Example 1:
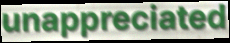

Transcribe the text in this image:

unappreciated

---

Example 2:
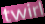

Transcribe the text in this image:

twirl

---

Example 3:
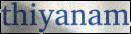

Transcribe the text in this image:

thiyanam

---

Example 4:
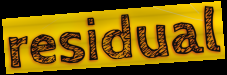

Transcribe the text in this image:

residual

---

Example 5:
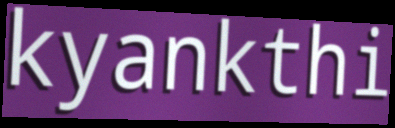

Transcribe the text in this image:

kyankthi